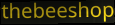
thebeeshop